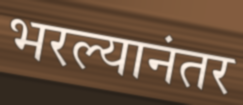
भरल्यानंतर